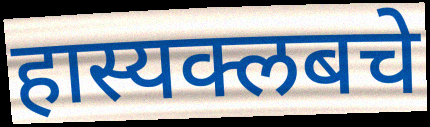
हास्यक्लबचे